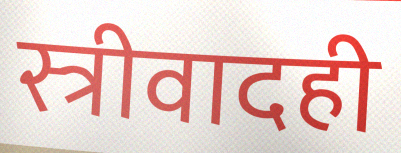
स्त्रीवादही